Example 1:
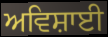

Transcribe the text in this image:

ਅਵਿਸ਼ਾਈ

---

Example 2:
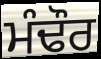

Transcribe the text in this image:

ਮੰਢੌਰ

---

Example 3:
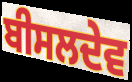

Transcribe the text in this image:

ਬੀਸਲਦੇਵ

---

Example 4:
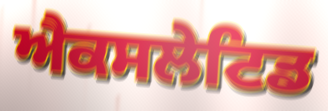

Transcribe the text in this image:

ਐਕਸਲੇਟਿਡ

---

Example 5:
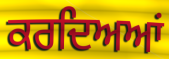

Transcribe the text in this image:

ਕਰਦਿਅਆਂ